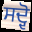
ਸਦ੍ਦੋ